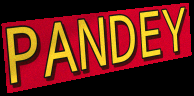
PANDEY